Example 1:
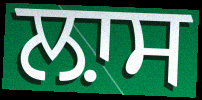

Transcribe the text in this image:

ਲ਼ਾਸ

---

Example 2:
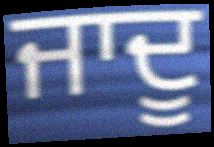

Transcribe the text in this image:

ਜਾਦੂ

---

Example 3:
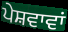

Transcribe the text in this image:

ਪੇਸ਼ਵਾਵਾਂ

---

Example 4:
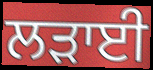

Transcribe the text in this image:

ਲੜਾਈ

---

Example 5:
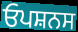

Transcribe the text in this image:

ਓਪਸ਼ਨਸ